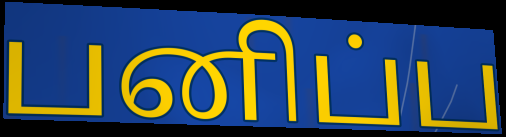
பனிப்ப